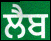
ਲੈਬ